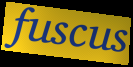
fuscus